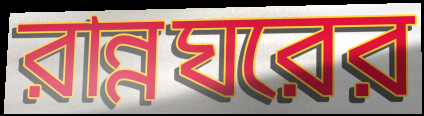
রান্নঘরের